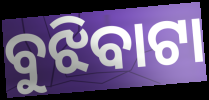
ବୁଝିବାଟା